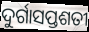
ଦୁର୍ଗାସପ୍ତଶତୀ